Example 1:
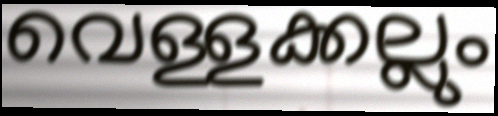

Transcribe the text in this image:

വെള്ളക്കല്ലും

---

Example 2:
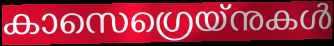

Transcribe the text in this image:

കാസെഗ്രെയ്നുകൾ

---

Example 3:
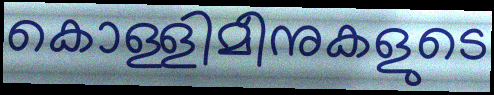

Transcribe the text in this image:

കൊള്ളിമീനുകളുടെ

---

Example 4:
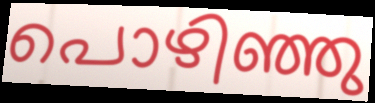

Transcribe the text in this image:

പൊഴിഞ്ഞു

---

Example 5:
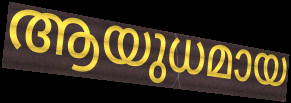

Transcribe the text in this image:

ആയുധമായ